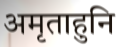
अमृताहुनि